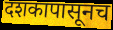
दशकापासूनच